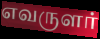
எவருளர்